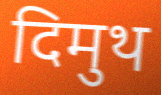
दिमुथ